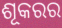
ଶୂକରର